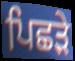
ਪਿਛੜੇ